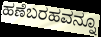
ಹಣೆಬರಹವನ್ನೂ